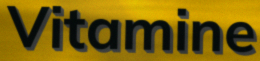
Vitamine